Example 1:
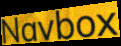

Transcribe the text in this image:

Navbox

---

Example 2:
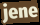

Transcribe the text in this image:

jene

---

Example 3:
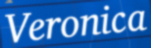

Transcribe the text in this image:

Veronica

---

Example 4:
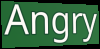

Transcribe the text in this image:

Angry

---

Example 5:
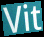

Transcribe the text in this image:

Vit